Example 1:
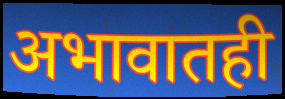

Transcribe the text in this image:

अभावातही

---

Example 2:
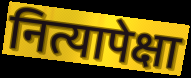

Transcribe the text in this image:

नित्यापेक्षा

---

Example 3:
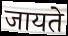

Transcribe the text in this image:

जायते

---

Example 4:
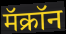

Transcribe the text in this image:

मॅक्रॉन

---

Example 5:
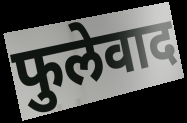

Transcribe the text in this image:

फुलेवाद